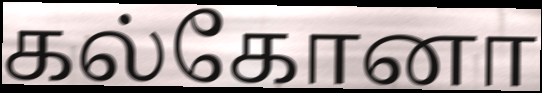
கல்கோனா